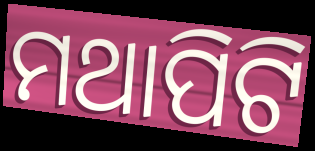
ମଥାପିଟି